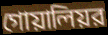
গোয়ালিয়র